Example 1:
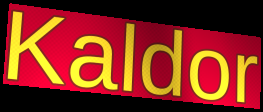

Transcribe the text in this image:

Kaldor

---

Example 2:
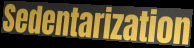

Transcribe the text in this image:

Sedentarization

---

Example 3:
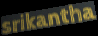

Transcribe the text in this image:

srikantha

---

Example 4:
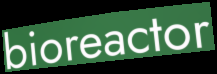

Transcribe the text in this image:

bioreactor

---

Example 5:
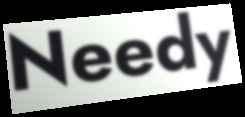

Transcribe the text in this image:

Needy